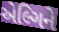
એલ્ગિને